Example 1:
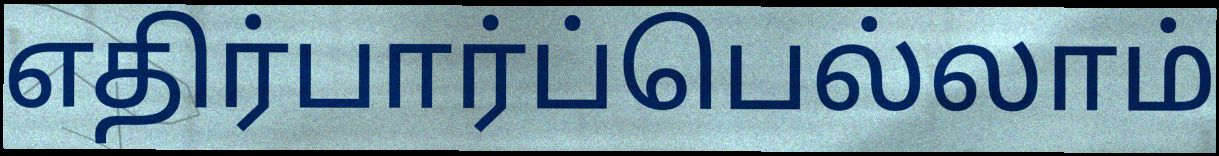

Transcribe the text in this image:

எதிர்பார்ப்பெல்லாம்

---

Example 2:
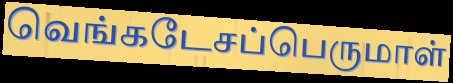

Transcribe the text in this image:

வெங்கடேசப்பெருமாள்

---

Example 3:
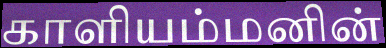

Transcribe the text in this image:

காளியம்மனின்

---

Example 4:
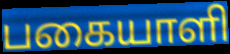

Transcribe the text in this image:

பகையாளி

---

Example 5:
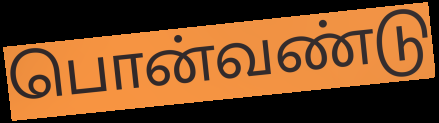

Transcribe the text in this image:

பொன்வண்டு